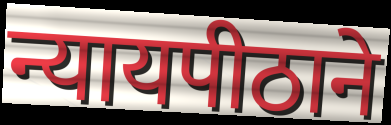
न्यायपीठाने